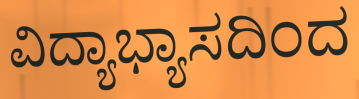
ವಿದ್ಯಾಭ್ಯಾಸದಿಂದ